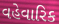
વહેવારિક